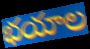
భయాల